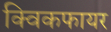
क्विकफायर